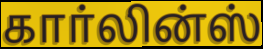
கார்லின்ஸ்